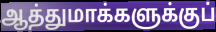
ஆத்துமாக்களுக்குப்